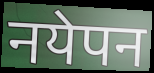
नयेपन